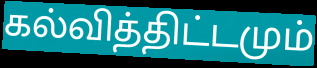
கல்வித்திட்டமும்